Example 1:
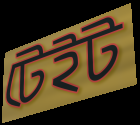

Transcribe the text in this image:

টেইট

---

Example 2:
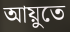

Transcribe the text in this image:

আয়ুতে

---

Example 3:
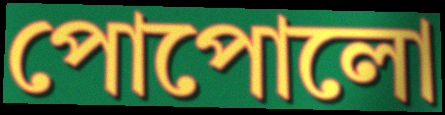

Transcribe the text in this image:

পোপোলো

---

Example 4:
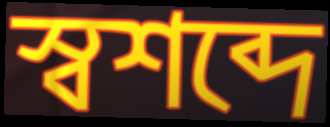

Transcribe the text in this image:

স্বশব্দে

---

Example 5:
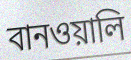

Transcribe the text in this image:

বানওয়ালি